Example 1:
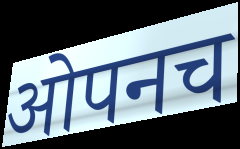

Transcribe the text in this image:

ओपनच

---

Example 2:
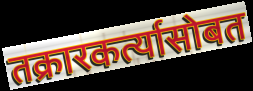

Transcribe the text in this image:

तक्रारकर्त्यासोबत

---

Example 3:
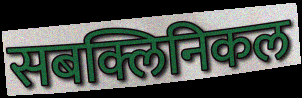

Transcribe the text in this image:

सबक्लिनिकल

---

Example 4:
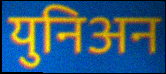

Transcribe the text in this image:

युनिअन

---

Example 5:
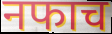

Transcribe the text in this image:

नफाच